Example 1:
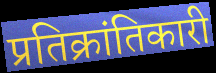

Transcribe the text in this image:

प्रतिक्रांतिकारी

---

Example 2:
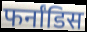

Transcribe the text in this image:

फर्नांडिस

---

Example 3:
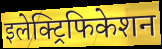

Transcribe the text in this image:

इलेक्ट्रिफिकेशन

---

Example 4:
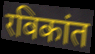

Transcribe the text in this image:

रविकांत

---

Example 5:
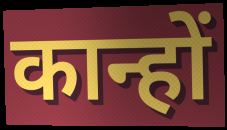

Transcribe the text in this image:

कान्हों